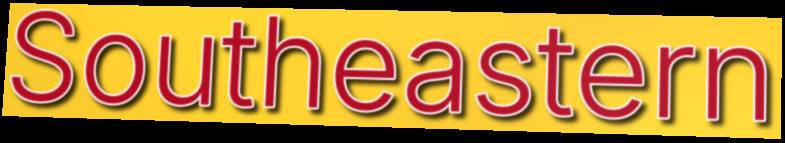
Southeastern